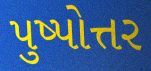
પુષ્પોત્તર